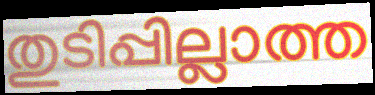
തുടിപ്പില്ലാത്ത